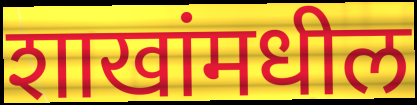
शाखांमधील